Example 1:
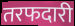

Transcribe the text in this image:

तरफदारी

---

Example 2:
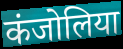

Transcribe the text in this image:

कंजोलिया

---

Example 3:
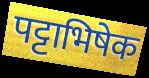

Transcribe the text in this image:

पट्टाभिषेक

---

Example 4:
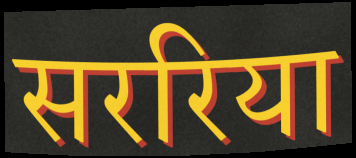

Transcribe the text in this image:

सररिया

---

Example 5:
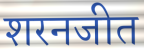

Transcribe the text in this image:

शरनजीत